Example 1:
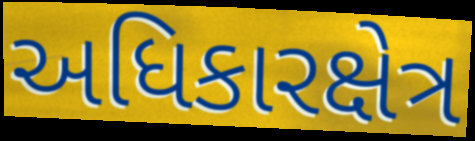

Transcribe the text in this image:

અધિકારક્ષેત્ર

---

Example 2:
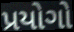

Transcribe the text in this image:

પ્રયોગો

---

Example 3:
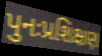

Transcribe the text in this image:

પુનઃપ્રશિક્ષણ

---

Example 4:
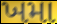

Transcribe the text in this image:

ખમા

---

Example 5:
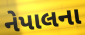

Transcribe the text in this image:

નેપાલના